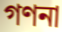
গণনা